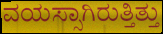
ವಯಸ್ಸಾಗಿರುತ್ತಿತ್ತು